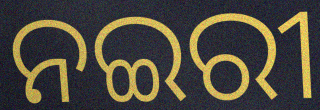
ନଇରୀ